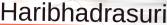
Haribhadrasuri